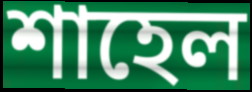
শাহেল